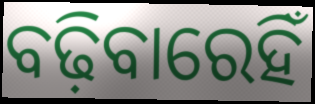
ବଢ଼ିବାରେହିଁ